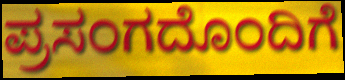
ಪ್ರಸಂಗದೊಂದಿಗೆ